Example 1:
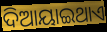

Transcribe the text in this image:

ଦିଆୟାଇଥାଏ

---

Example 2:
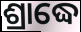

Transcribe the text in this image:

ଶ୍ରାଦ୍ଧେ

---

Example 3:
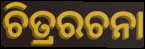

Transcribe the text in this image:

ଚିତ୍ରରଚନା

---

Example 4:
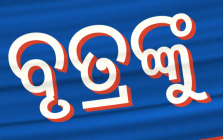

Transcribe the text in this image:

ବୃତ୍ରଙ୍କୁ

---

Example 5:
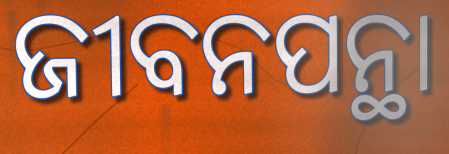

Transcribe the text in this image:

ଜୀବନପନ୍ଥା